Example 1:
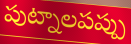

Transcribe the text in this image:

పుట్నాలపప్పు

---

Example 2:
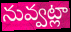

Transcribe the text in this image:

నువ్వట్లా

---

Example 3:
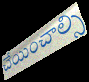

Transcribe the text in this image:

చేయించాల్సి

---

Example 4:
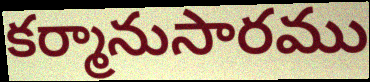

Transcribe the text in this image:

కర్మానుసారము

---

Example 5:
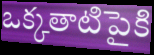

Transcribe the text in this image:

ఒక్కతాటిపైకి